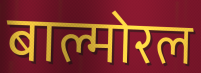
बाल्‍मोरल